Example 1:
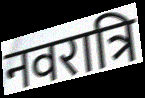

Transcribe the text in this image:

नवरात्रि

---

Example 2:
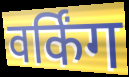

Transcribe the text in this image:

वर्किंग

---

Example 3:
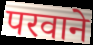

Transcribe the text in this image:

परवाने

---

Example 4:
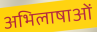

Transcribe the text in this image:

अभिलाषाओं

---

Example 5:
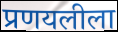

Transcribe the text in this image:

प्रणयलीला